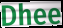
Dhee